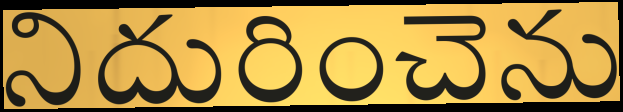
నిదురించెను